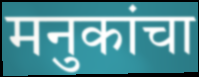
मनुकांचा